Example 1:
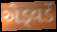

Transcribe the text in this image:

એડ્વર્ડે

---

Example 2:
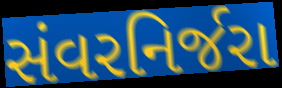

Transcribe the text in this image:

સંવરનિર્જરા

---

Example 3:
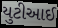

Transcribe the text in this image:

યુટીઆઈ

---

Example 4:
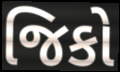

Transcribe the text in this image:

જિકો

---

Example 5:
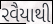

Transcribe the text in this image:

રવૈયાથી